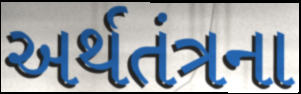
અર્થતંત્રના